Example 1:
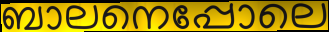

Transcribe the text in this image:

ബാലനെപ്പോലെ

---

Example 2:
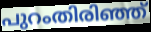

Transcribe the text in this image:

പുറംതിരിഞ്ഞ്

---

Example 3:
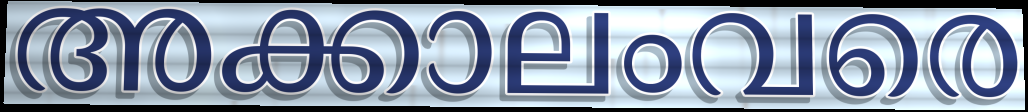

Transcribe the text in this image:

അക്കാലംവരെ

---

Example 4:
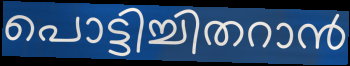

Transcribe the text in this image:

പൊട്ടിച്ചിതറാൻ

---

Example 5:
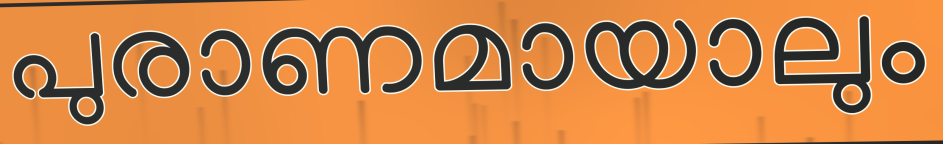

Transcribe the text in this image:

പുരാണമായാലും